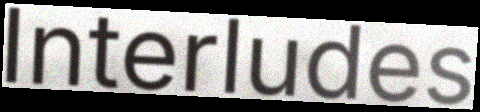
Interludes